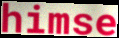
himse